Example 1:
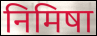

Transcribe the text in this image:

निमिषा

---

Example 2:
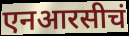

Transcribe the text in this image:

एनआरसीचं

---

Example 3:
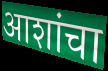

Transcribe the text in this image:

आशांचा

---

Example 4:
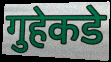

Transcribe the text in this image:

गुहेकडे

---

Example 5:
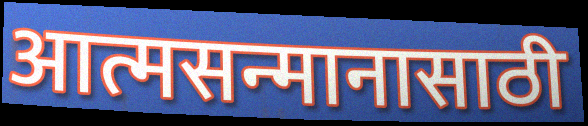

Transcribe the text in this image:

आत्मसन्मानासाठी